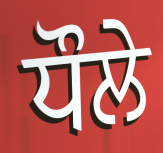
ਧੌਲੇ